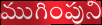
ముగింపుని